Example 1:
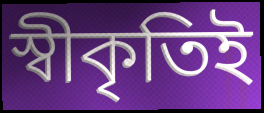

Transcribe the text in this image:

স্বীকৃতিই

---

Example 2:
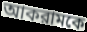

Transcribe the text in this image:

আকরামকে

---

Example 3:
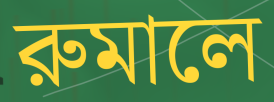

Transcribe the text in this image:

রুমালে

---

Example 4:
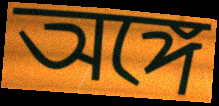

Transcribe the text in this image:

অঙ্গে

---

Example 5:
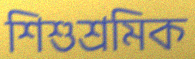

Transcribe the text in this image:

শিশুশ্রমিক